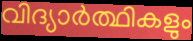
വിദ്യാർത്ഥികളും